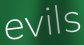
evils